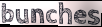
bunches